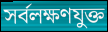
সর্বলক্ষণযুক্ত